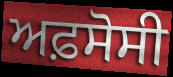
ਅਫ਼ਸੋਸੀ